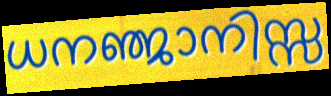
ധനഞ്ജാനിസ്സ